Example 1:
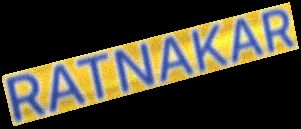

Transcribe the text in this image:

RATNAKAR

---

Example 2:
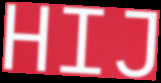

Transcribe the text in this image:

HIJ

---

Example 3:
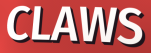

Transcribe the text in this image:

CLAWS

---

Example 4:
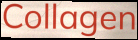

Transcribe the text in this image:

Collagen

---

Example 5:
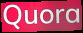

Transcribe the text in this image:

Quora